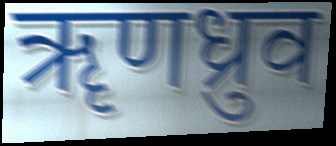
ॠणध्रुव